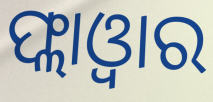
ଫ୍ଲାଓ୍ବାର